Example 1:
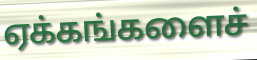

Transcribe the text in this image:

ஏக்கங்களைச்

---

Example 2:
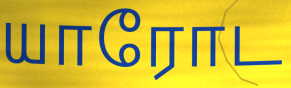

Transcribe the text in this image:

யாரோட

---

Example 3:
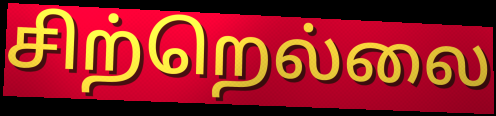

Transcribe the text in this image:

சிற்றெல்லை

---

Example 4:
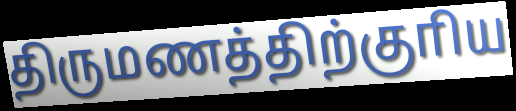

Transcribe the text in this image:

திருமணத்திற்குரிய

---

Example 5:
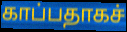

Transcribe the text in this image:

காப்பதாகச்